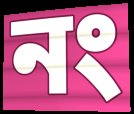
নং